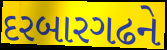
દરબારગઢને